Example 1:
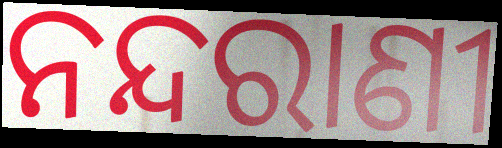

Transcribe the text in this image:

ନନ୍ଦରାଣୀ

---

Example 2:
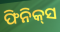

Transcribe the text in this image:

ଫିନିକ୍‌ସ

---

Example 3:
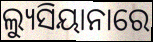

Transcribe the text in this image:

ଲ୍ୟୁସିୟାନାରେ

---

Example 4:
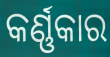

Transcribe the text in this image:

କର୍ଣ୍ଣକାର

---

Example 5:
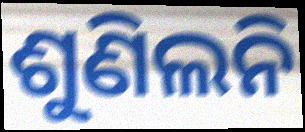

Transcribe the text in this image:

ଶୁଣିଲନି